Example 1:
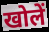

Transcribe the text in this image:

खोलें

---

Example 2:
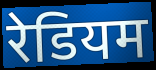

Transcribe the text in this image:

रेडियम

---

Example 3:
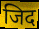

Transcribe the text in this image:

जिद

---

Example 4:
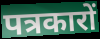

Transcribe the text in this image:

पत्रकारों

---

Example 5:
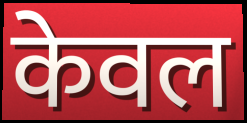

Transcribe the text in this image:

केवल